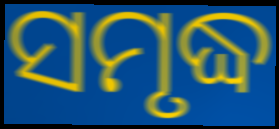
ସମୃଦ୍ଧ